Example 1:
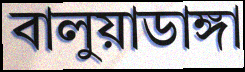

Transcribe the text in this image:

বালুয়াডাঙ্গা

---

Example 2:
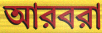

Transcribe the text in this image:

আরবরা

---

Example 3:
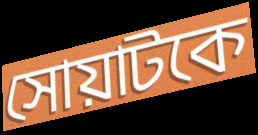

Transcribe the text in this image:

সোয়াটকে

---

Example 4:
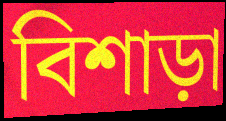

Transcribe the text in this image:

বিশাড়া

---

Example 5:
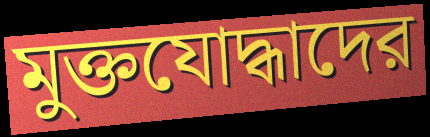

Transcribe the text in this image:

মুক্তযোদ্ধাদের